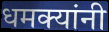
धमक्यांनी